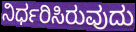
ನಿರ್ಧರಿಸಿರುವುದು